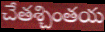
చేతశ్చింతయ